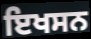
ਇਖਸਨ